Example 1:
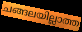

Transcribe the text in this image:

ചങ്ങലയില്ലാത്ത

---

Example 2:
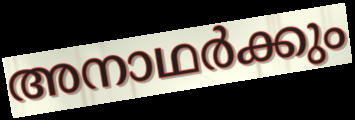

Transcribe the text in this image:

അനാഥർക്കും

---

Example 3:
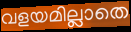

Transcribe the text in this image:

വളയമില്ലാതെ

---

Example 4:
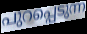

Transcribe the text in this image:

പുറപ്പെടുന്ന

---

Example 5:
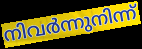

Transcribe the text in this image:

നിവർന്നുനിന്ന്